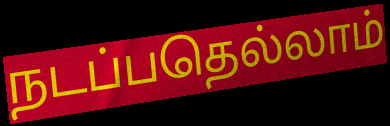
நடப்பதெல்லாம்